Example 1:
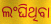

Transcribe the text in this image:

ଲଂଘିଥିବା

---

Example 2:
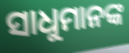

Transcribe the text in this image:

ସାଧୁମାନଙ୍କ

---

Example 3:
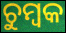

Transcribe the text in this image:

ଚୁମ୍ବକ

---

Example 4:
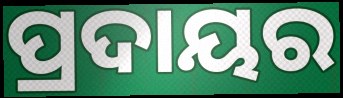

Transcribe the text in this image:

ପ୍ରଦାୟର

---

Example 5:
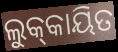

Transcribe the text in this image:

ଲୁକ୍‌କାୟିତ